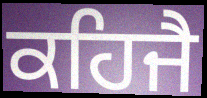
ਕਹਿਜੈ